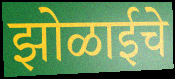
झोळाईचे